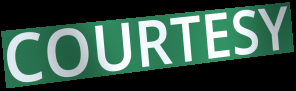
COURTESY